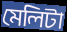
মেলিটা